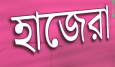
হাজেরা